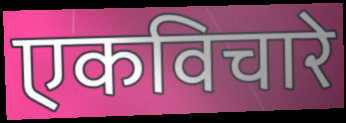
एकविचारे